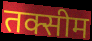
तक्सीम